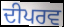
ਦੀਪਰਵ